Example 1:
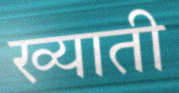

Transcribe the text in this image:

ख्याती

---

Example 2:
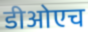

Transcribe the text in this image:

डीओएच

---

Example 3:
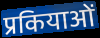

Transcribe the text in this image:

प्रकियाओं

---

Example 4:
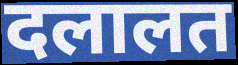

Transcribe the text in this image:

दलालत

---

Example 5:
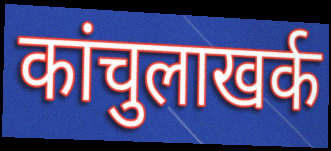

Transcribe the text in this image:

कांचुलाखर्क